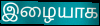
இழையாக